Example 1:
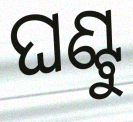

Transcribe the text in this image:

ଘଣ୍ଟୁ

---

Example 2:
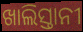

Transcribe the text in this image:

ଖାଲିସ୍ତାନୀ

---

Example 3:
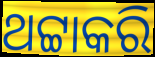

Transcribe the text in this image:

ଥଟ୍ଟାକରି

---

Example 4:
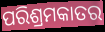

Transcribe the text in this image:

ପରିଶ୍ରମକାତର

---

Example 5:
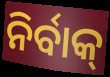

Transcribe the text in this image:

ନିର୍ବାକ୍